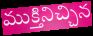
ముక్తినిచ్చిన